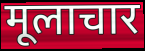
मूलाचार